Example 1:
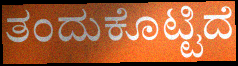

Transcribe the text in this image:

ತಂದುಕೊಟ್ಟಿದೆ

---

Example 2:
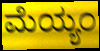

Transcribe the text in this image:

ಮೆಯ್ಯಂ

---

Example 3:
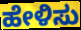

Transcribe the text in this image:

ಹೇಳಿಸು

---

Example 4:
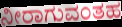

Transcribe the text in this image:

ನೀರಾಗುವಂತಹ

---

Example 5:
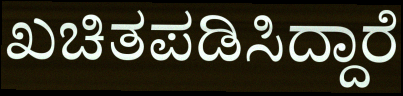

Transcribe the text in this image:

ಖಚಿತಪಡಿಸಿದ್ದಾರೆ